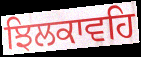
ਝਿਲਕਾਵਹਿ